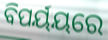
ବିପର୍ୟୟରେ